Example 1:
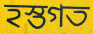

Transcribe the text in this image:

হস্তগত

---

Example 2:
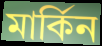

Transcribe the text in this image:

মার্কিন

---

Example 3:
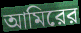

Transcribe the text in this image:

আমিরের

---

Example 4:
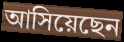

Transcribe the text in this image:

আসিয়েছেন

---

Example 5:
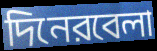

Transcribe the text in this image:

দিনেরবেলা